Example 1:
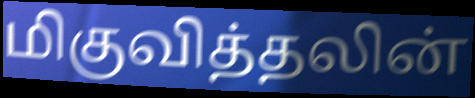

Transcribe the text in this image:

மிகுவித்தலின்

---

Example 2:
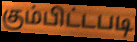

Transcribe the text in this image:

கும்பிட்டபடி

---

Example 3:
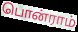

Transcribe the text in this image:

பொன்ராம்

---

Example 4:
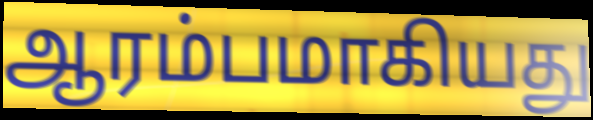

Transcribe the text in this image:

ஆரம்பமாகியது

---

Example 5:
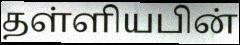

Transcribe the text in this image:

தள்ளியபின்